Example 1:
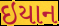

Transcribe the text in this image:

ઇયાન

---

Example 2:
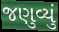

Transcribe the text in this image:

જણુવ્યું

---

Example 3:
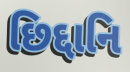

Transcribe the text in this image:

છિદ્દાનિ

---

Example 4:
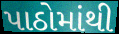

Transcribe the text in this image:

પાઠોમાંથી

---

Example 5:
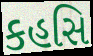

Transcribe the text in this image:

કહસિ